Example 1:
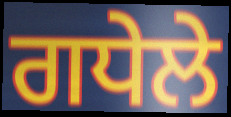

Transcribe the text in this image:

ਗਧੇਲੇ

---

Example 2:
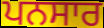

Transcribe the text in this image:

ਪਨਸਾਰ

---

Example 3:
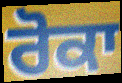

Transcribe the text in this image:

ਰੋਕਾ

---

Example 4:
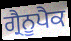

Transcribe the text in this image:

ਗ੍ਰੈਨੂਪੈਕ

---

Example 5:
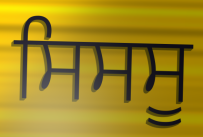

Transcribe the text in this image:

ਸਿਸਸੂ